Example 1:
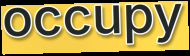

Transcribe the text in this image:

occupy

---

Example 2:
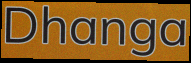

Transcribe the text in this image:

Dhanga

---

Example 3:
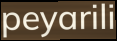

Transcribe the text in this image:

peyarili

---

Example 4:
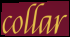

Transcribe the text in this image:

collar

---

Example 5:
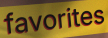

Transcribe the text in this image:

favorites